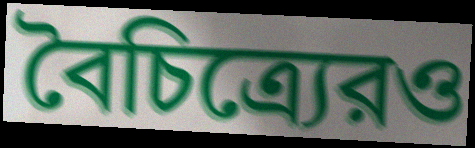
বৈচিত্র্যেরও